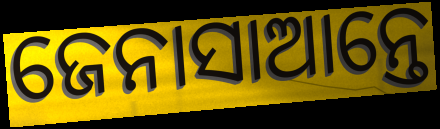
ଜେନାସାଆନ୍ତେ